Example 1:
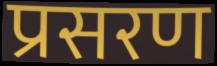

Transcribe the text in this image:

प्रसरण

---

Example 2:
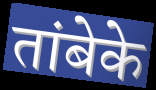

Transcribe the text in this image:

तांबेके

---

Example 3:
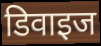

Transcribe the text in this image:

डिवाइज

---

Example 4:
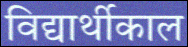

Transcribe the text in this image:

विद्यार्थीकाल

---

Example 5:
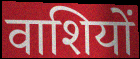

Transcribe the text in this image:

वाशियों